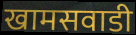
खामसवाडी